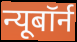
न्यूबॉर्न